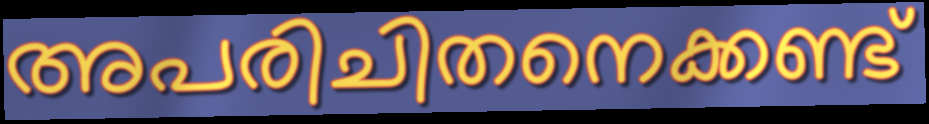
അപരിചിതനെക്കണ്ട്